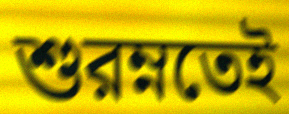
শুরম্নতেই